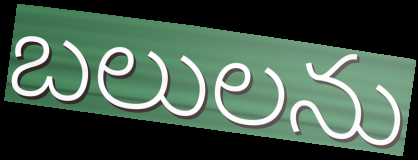
బలులను